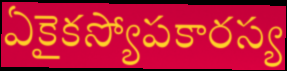
ఏకైకస్యోపకారస్య